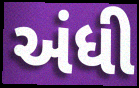
અંધી